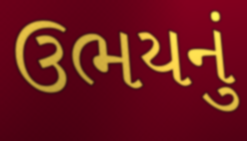
ઉભયનું